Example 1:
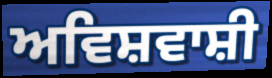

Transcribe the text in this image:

ਅਵਿਸ਼ਵਾਸ਼ੀ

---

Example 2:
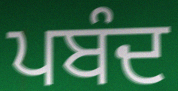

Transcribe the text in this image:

ਪਬੰਦ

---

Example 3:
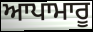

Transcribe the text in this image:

ਆਪਾਮਾਰੂ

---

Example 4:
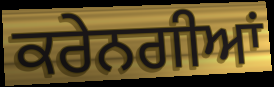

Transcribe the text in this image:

ਕਰੇਨਗੀਆਂ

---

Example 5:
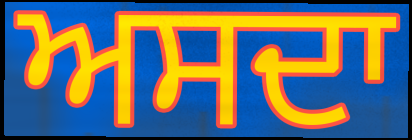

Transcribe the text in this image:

ਅਸਦਾ